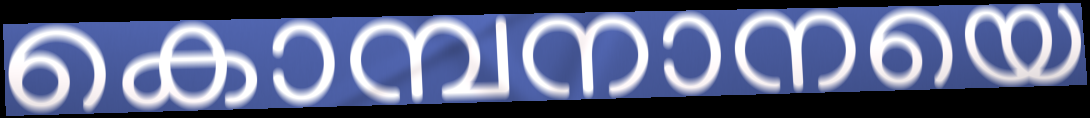
കൊമ്പനാനയെ